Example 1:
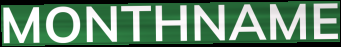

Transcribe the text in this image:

MONTHNAME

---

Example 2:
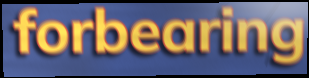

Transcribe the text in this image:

forbearing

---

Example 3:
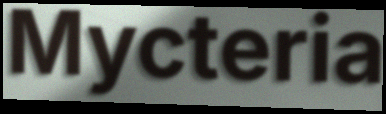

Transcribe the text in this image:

Mycteria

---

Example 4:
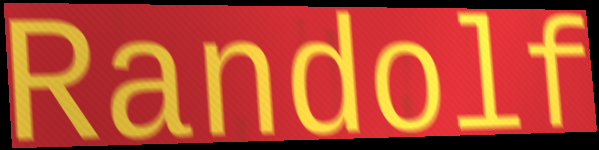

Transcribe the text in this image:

Randolf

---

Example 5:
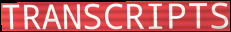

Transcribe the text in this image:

TRANSCRIPTS